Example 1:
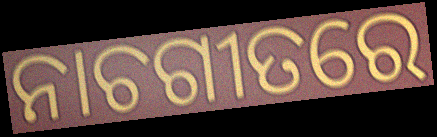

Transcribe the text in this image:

ନାଚଗୀତରେ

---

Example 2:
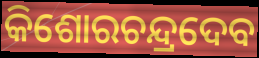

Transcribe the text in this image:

କିଶୋରଚନ୍ଦ୍ରଦେବ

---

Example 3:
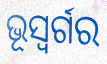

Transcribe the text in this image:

ଭୂସ୍ବର୍ଗର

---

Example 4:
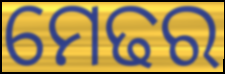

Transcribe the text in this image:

ମେଢର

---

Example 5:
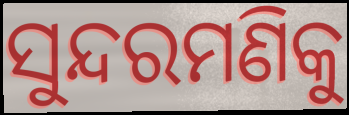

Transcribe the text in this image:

ସୁନ୍ଦରମଣିକୁ